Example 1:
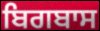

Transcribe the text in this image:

ਬਿਗਬਾਸ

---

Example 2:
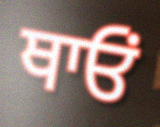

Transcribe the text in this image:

ਥਾਓਂ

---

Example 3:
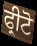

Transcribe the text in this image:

ਫ੍ਰੀਟੋ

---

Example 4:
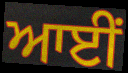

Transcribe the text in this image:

ਆਈਂ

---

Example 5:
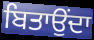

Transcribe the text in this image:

ਬਿਤਾਉਂਦਾ